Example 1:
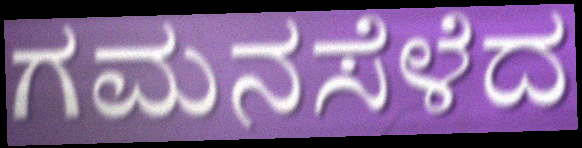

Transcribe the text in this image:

ಗಮನಸೆಳೆದ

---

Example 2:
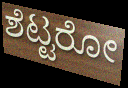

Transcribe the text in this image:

ಶೆಟ್ಟರೋ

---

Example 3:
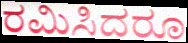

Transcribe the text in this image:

ರಮಿಸಿದರೂ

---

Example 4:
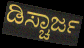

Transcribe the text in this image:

ಡಿಸ್ಚಾರ್ಜ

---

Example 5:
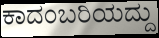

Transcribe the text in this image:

ಕಾದಂಬರಿಯದ್ದು